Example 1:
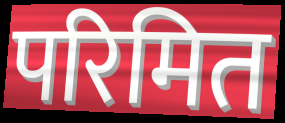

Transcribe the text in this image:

परिमित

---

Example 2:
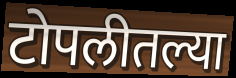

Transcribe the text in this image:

टोपलीतल्या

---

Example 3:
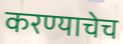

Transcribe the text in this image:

करण्याचेच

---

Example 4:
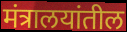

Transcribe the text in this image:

मंत्रालयांतील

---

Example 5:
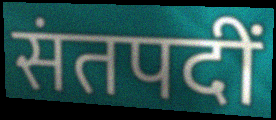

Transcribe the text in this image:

संतपदीं